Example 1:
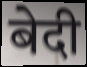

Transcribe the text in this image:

बेदी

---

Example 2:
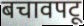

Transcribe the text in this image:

बचावपटू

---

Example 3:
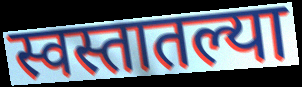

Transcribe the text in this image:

स्वस्तातल्या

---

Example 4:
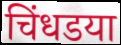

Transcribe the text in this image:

चिंधडया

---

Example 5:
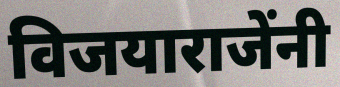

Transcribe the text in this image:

विजयाराजेंनी